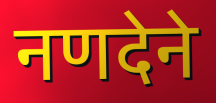
नणदेने